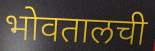
भोवतालची